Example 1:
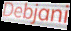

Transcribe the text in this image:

Debjani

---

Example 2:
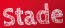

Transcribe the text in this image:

Stade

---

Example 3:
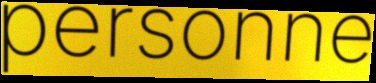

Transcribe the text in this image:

personne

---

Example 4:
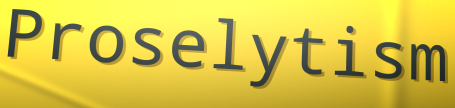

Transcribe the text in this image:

Proselytism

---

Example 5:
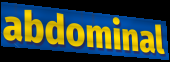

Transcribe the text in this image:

abdominal